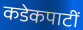
कडेकपाटीं